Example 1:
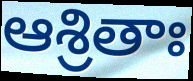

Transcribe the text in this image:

ఆశ్రితాః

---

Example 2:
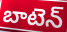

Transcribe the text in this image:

బాటెన్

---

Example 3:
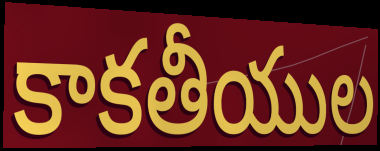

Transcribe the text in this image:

కాకతీయుల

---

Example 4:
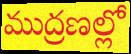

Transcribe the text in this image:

ముద్రణల్లో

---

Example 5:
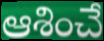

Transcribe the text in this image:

ఆశించే